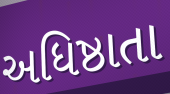
અધિષ્ઠાતા